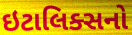
ઇટાલિક્સનો